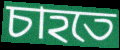
চাহতে